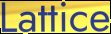
Lattice